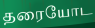
தரையோட